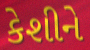
કેશીને